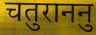
चतुराननु